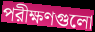
পরীক্ষণগুলো